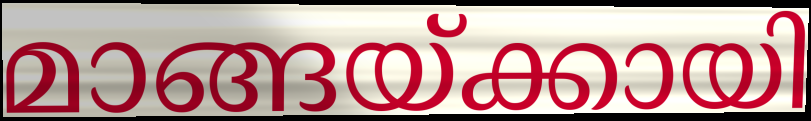
മാങ്ങയ്ക്കായി